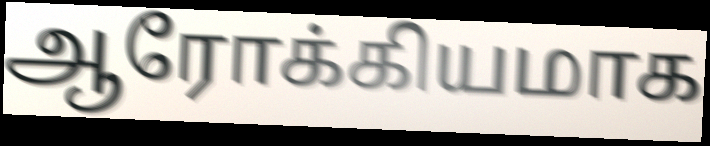
ஆரோக்கியமாக